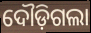
ଦୌଡ଼ିଗଲା